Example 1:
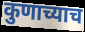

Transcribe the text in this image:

कुणाच्याच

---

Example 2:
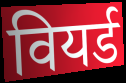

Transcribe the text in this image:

वियर्ड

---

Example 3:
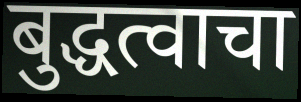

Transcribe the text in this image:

बुद्धत्वाचा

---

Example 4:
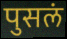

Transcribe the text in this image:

पुसलं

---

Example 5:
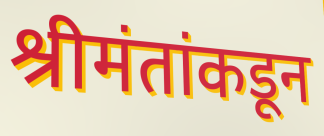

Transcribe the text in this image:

श्रीमंतांकडून